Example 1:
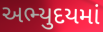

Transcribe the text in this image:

અભ્યુદયમાં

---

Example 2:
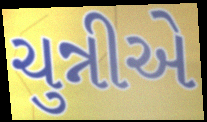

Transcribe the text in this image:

ચુન્નીએ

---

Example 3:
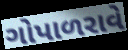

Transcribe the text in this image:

ગોપાળરાવે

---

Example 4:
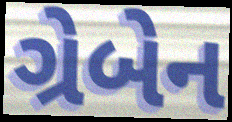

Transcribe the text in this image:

ગ્રેબેન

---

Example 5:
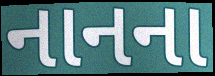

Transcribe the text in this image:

નાનના